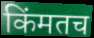
किंमतच